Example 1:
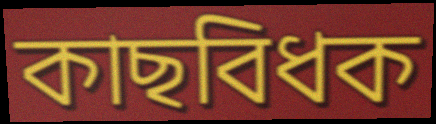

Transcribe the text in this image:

কাছবিধক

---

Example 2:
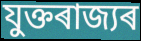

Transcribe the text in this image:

যুক্তৰাজ্যৰ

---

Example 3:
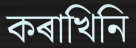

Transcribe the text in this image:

কৰাখিনি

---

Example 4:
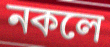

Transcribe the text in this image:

নকলে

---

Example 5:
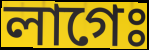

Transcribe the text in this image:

লাগেঃ